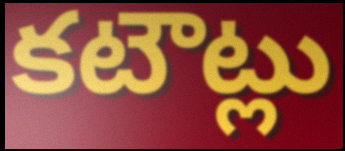
కటౌట్లు